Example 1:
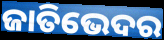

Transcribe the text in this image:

ଜାତିଭେଦର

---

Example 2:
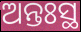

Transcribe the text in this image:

ଅନ୍ତଃସ୍ଥ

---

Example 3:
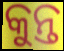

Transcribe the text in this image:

କୁନ୍ତ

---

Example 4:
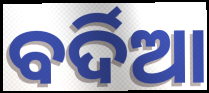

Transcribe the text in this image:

ବର୍ଦିଆ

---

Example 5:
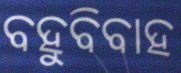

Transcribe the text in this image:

ବହୁବିବାହ